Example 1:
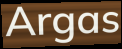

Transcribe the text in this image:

Argas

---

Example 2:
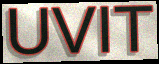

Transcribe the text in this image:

UVIT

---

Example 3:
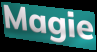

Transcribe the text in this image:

Magie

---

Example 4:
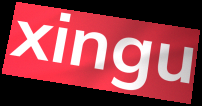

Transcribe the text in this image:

xingu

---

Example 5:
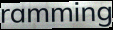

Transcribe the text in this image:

ramming